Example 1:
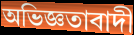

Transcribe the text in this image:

অভিজ্ঞতাবাদী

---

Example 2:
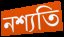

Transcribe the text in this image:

নশ্যতি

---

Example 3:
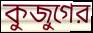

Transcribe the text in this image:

কুজুগের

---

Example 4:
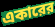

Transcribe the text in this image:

একারের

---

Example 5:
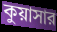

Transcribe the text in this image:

কুয়াসার